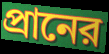
প্রানের